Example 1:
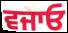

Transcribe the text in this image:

ਵਜਾਓ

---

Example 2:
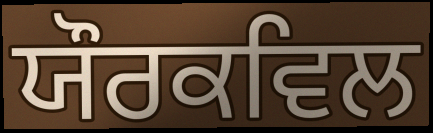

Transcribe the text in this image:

ਯੌਰਕਵਿਲ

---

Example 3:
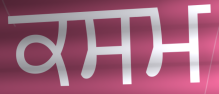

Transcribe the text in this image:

ਕਸਮ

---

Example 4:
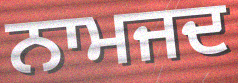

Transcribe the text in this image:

ਨਾਮਜਦ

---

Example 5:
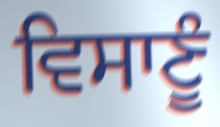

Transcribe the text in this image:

ਵਿਸਾਣੂੰ